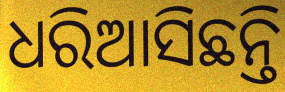
ଧରିଆସିଛନ୍ତି